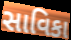
સાવિકા